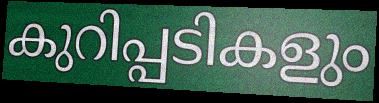
കുറിപ്പടികളും